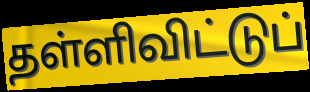
தள்ளிவிட்டுப்